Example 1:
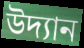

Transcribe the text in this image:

উদ্যান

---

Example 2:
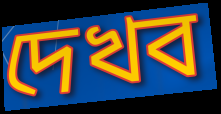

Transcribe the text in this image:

দেখব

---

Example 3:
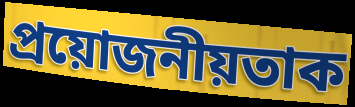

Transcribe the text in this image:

প্ৰয়োজনীয়তাক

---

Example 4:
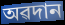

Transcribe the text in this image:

অৱদান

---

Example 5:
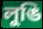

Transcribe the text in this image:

লুঙি